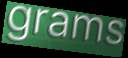
grams